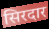
सिरदार